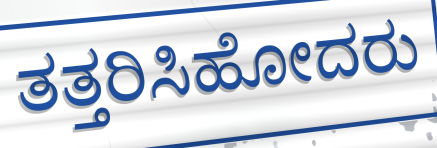
ತತ್ತರಿಸಿಹೋದರು